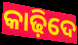
କାଢ଼ିଦେ